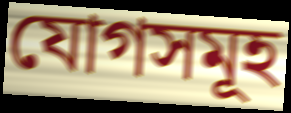
যোগসমূহ